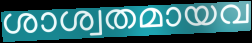
ശാശ്വതമായവ